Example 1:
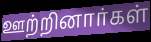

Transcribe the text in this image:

ஊற்றினார்கள்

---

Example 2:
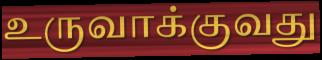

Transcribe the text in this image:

உருவாக்குவது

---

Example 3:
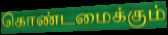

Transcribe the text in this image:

கொண்டமைக்கும்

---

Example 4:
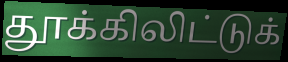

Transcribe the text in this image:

தூக்கிலிட்டுக்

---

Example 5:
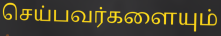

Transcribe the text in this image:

செய்பவர்களையும்